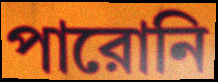
পারোনি